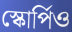
স্কোর্পিও